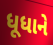
ધૂધાને